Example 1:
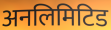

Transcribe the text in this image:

अनलिमिटिड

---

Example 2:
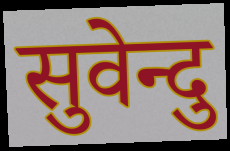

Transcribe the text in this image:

सुवेन्दु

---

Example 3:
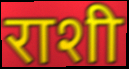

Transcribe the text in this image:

राशी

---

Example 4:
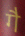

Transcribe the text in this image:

गै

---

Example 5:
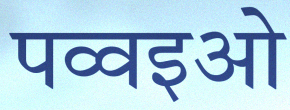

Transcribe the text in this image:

पव्वइओ